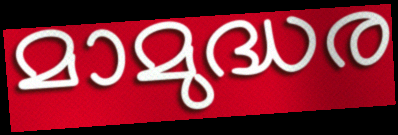
മാമുദ്ധര